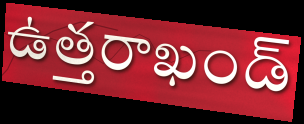
ఉత్తరాఖండ్